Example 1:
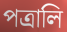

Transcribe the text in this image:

পত্রালি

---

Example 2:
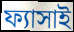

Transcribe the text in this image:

ফ্যাসাই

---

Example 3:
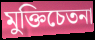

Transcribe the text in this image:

মুক্তিচেতনা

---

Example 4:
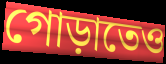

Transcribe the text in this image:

গোড়াতেও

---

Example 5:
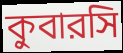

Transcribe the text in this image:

কুবারসি